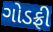
ગોડફ્રી